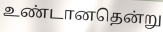
உண்டானதென்று